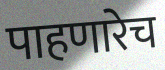
पाहणारेच